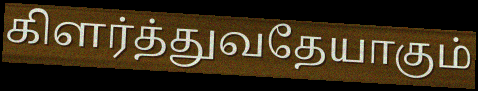
கிளர்த்துவதேயாகும்